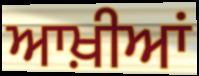
ਆਖ਼ੀਆਂ